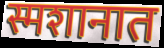
स्मशानात